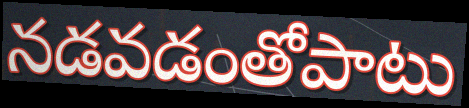
నడవడంతోపాటు